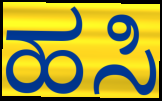
ಹಸಿ